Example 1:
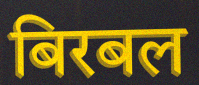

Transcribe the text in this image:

बिरबल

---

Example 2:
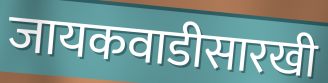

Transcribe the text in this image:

जायकवाडीसारखी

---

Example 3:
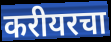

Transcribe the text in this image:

करीयरचा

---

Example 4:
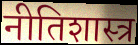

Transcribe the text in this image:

नीतिशास्त्र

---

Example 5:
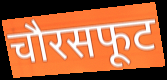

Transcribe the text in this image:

चौरसफूट